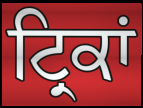
ਟ੍ਰਿਕਾਂ